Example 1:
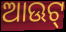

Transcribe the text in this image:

ଆଊଟ୍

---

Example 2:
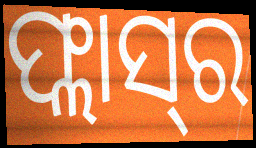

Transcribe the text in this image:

ଫ୍ଲାସ୍‌ର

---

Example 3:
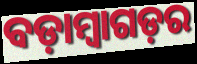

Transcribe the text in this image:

ବଡ଼ାମ୍ବାଗଡ଼ର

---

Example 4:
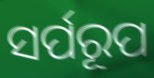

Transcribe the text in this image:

ସର୍ପରୂପ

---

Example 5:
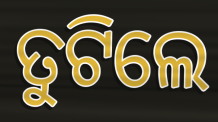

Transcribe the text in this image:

ତୁଟିଲେ